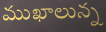
ముఖాలున్న